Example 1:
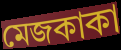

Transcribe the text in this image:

মেজকাকা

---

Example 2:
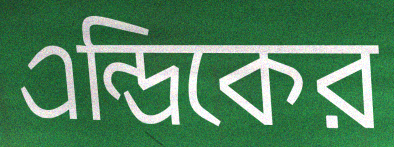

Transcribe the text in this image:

এন্দ্রিকের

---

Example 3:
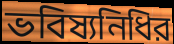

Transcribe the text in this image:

ভবিষ্যনিধির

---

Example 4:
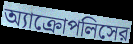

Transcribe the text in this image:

অ্যাক্রোপলিসের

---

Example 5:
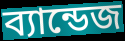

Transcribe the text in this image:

ব্যান্ডেজ